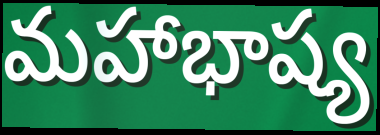
మహాభాష్య